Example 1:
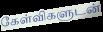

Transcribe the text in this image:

கேள்விகளுடன்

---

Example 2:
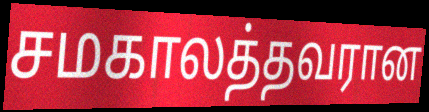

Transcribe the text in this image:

சமகாலத்தவரான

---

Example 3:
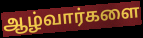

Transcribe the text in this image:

ஆழ்வார்களை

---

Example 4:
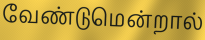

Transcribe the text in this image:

வேண்டுமென்றால்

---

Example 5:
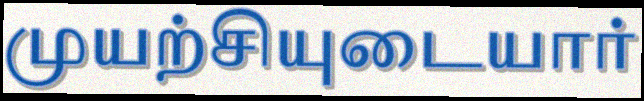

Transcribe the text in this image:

முயற்சியுடையார்